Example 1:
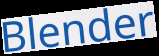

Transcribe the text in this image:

Blender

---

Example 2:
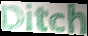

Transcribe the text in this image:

Ditch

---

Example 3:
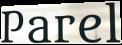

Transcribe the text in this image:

Parel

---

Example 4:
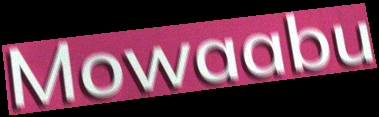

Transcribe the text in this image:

Mowaabu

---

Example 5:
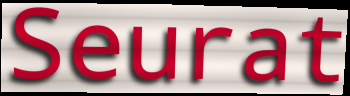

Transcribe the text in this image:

Seurat